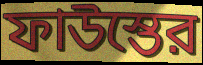
ফাউস্তের